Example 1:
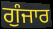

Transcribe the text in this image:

ਗੁੰਜਾਰ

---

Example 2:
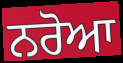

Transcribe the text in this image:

ਨਰੋਆ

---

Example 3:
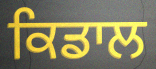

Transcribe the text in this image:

ਕਿਡਾਲ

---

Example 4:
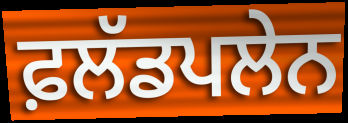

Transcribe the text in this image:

ਫ਼ਲੱਡਪਲੇਨ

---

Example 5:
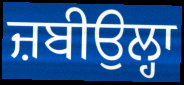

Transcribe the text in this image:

ਜ਼ਬੀਉਲ੍ਹਾ